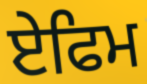
ਏਫਿਮ